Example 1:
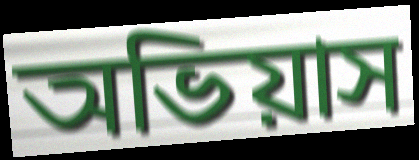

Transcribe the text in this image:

অভিয়াস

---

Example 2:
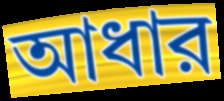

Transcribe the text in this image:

আধার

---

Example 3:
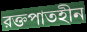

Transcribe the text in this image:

রক্তপাতহীন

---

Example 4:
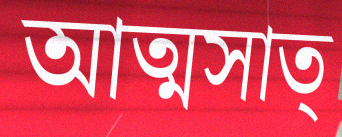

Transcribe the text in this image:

আত্মসাত্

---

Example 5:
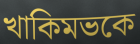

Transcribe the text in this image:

খাকিমভকে